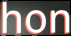
hon